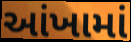
આંખામાં